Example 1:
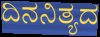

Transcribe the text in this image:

ದಿನನಿತ್ಯದ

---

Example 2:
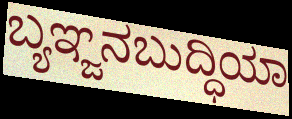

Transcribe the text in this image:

ಬ್ಯಞ್ಜನಬುದ್ಧಿಯಾ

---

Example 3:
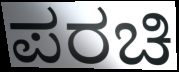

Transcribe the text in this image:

ಪರಚಿ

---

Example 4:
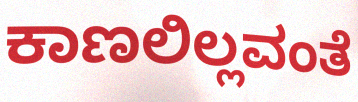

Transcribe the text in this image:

ಕಾಣಲಿಲ್ಲವಂತೆ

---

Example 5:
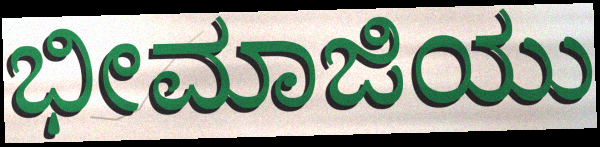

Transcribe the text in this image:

ಭೀಮಾಜಿಯು